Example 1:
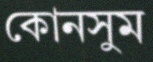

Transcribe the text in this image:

কোনসুম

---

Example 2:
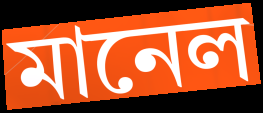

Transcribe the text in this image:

মানেল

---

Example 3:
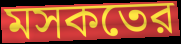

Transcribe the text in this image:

মসকতের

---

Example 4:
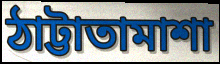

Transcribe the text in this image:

ঠাট্টাতামাশা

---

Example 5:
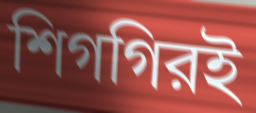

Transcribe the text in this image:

শিগগিরই